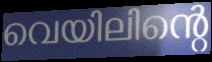
വെയിലിന്റെ